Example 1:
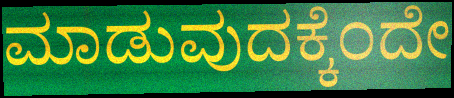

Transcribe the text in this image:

ಮಾಡುವುದಕ್ಕೆಂದೇ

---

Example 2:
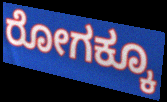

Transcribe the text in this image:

ರೋಗಕ್ಕೂ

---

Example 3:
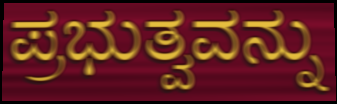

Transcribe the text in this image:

ಪ್ರಭುತ್ವವನ್ನು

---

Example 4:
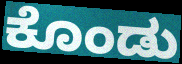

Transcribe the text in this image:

ಕೊಂಡು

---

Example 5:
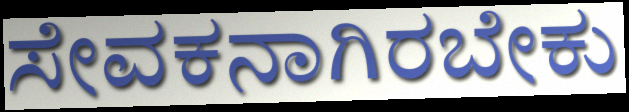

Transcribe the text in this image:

ಸೇವಕನಾಗಿರಬೇಕು